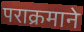
पराक्रमाने